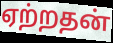
ஏற்றதன்